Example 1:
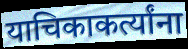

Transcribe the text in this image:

याचिकाकर्त्यांना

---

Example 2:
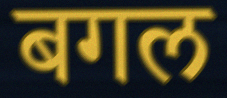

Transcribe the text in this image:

बगल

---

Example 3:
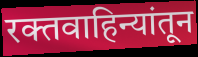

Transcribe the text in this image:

रक्तवाहिन्यांतून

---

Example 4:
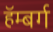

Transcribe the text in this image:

हॅम्बर्ग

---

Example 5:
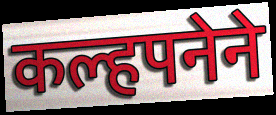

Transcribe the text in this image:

कल्हपनेने